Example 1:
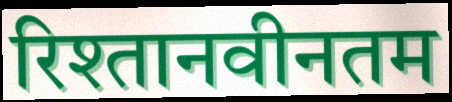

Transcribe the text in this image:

रिश्तानवीनतम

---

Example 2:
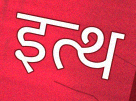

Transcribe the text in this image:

इत्थ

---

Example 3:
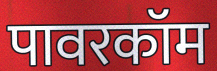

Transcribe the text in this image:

पावरकॉम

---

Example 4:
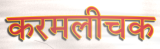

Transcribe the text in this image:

करमलीचक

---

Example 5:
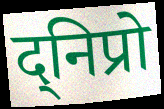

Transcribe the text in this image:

द्निप्रो